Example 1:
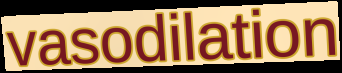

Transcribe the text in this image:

vasodilation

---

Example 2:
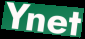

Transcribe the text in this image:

Ynet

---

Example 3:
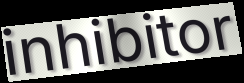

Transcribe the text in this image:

inhibitor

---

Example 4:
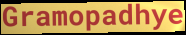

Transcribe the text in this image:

Gramopadhye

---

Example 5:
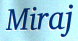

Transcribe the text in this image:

Miraj